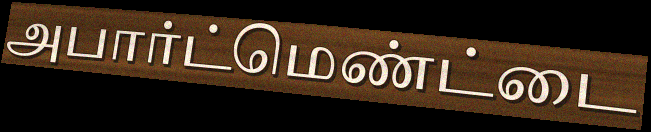
அபார்ட்மெண்ட்டை